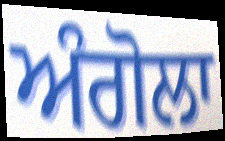
ਅੰਗੋਲਾ